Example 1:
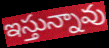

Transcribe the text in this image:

ఇస్తున్నావు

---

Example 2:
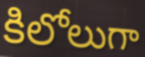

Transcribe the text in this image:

కిలోలుగా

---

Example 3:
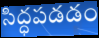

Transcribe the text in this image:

సిద్ధపడడం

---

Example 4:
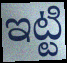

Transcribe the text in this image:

ఇట్టి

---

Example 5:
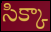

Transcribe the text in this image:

సిక్కా